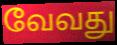
வேவது